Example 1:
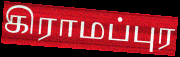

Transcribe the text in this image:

கிராமப்புர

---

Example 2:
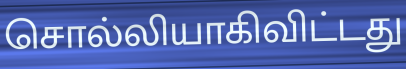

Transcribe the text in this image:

சொல்லியாகிவிட்டது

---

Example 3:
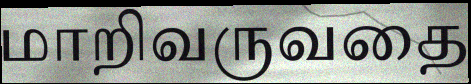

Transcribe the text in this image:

மாறிவருவதை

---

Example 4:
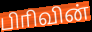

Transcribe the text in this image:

பிரிவின்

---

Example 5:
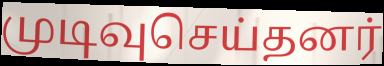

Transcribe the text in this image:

முடிவுசெய்தனர்